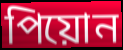
পিয়োন